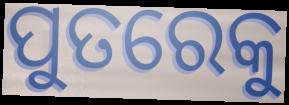
ପୁତରେକୁ